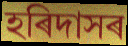
হৰিদাসৰ